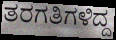
ತರಗತಿಗಳಿದ್ದ